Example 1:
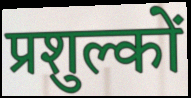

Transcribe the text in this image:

प्रशुल्कों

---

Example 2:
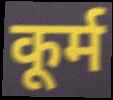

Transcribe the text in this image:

कूर्म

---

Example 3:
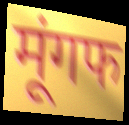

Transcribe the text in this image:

मूंगफ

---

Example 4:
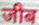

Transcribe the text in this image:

जीब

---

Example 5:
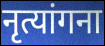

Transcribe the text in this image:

नृत्यांगना